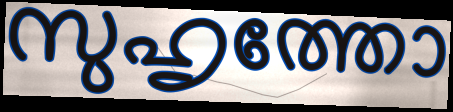
സുഹൃത്തോ